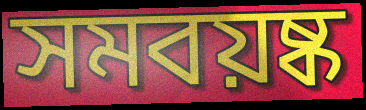
সমবয়ষ্ক